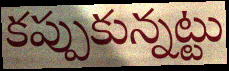
కప్పుకున్నట్టు